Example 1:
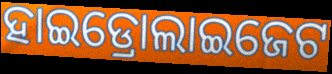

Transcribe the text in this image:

ହାଇଡ୍ରୋଲାଇଜେଟ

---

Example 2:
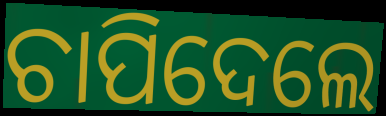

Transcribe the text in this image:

ଚାପିଦେଲେ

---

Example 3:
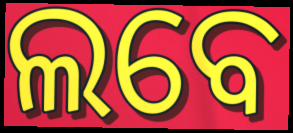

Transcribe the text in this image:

ଲବେ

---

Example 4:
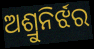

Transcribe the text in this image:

ଅଶ୍ରୁନିର୍ଝର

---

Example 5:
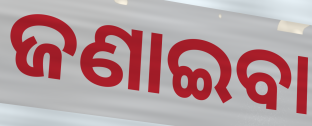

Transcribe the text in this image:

ଜଣାଇବା